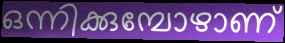
ഒന്നിക്കുമ്പോഴാണ്